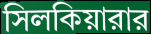
সিলকিয়ারার